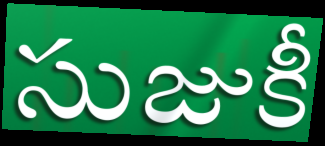
సుజుకీ